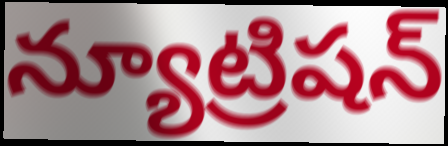
న్యూట్రిషన్